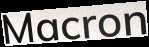
Macron